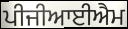
ਪੀਜੀਆਈਐਮ